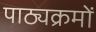
पाठ्यक्रमों